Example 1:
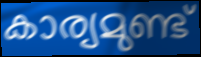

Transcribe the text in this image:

കാര്യമുണ്ട്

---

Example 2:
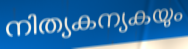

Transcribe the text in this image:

നിത്യകന്യകയും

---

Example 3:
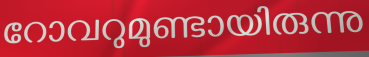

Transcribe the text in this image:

റോവറുമുണ്ടായിരുന്നു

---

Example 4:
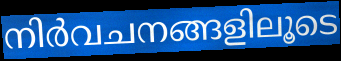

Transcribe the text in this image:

നിർവചനങ്ങളിലൂടെ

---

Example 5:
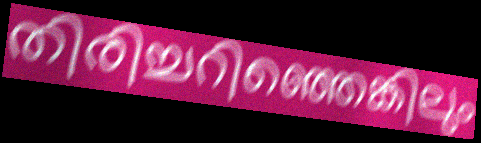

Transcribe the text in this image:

തിരിച്ചറിഞ്ഞെങ്കിലും